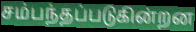
சம்பந்தப்படுகின்றன